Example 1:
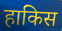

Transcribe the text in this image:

हाकिस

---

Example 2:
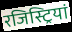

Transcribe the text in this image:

रजिस्ट्रियां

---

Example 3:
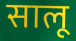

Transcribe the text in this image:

सालू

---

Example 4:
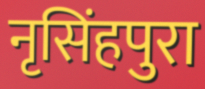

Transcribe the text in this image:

नृसिंहपुरा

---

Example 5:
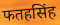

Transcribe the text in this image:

फतहसिंह